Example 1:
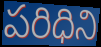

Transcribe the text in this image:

పరిధిని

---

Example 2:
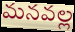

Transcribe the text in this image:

మనవల్ల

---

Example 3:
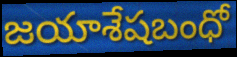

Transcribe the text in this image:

జయాశేషబంధో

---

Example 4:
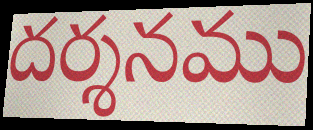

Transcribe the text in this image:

దర్శనము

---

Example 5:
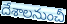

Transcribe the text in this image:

దేశాలనుంచీ